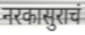
नरकासुराचं